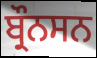
ਬ੍ਰੌਨਸਨ